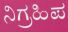
ನಿಗ್ರಹಿಪ